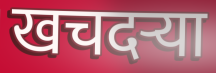
खचदऱ्या